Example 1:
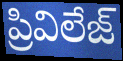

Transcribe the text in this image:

ప్రివిలేజ్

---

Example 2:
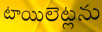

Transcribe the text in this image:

టాయిలెట్లను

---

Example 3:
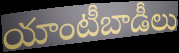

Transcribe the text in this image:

యాంటీబాడీలు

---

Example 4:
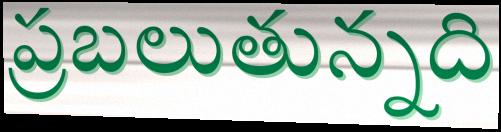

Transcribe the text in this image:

ప్రబలుతున్నది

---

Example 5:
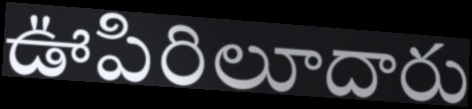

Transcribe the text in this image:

ఊపిరిలూదారు